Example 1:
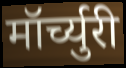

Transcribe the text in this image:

मॉर्च्युरी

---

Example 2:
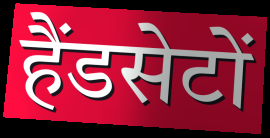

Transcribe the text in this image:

हैंडसेटों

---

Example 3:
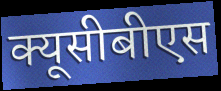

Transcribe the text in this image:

क्यूसीबीएस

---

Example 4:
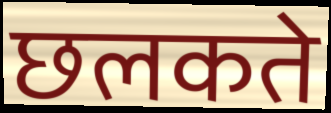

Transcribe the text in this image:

छलकते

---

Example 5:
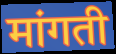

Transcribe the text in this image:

मांगती